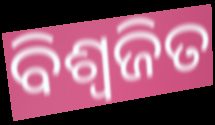
ବିଶ୍ଵଜିତ